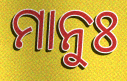
ମାନୁଃ